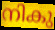
നികു